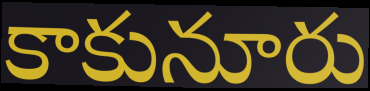
కాకునూరు